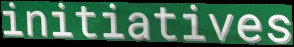
initiatives